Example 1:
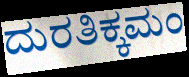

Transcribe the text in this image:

ದುರತಿಕ್ಕಮಂ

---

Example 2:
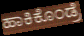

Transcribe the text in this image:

ಹಾಕಿಕೊಂಡ್ರೆ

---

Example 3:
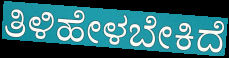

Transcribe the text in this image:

ತಿಳಿಹೇಳಬೇಕಿದೆ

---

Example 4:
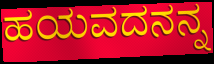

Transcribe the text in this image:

ಹಯವದನನ್ನ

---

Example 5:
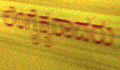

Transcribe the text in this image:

ಲಿಂಗೈಕ್ಯರಾದರು